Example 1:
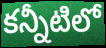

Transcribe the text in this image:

కన్నీటిలో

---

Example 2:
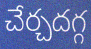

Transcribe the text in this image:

చేర్చదగ్గ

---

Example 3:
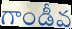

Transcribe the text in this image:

గాండీవ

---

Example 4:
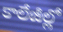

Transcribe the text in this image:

కాలేజీల్లో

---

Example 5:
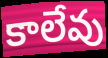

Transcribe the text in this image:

కాలేవు